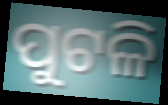
ପୁଟଳି